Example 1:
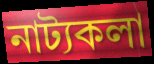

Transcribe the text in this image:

নাট্যকলা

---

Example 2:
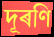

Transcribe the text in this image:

দূৰণি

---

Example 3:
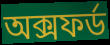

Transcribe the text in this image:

অক্সফৰ্ড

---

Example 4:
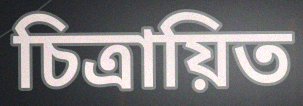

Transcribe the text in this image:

চিত্ৰায়িত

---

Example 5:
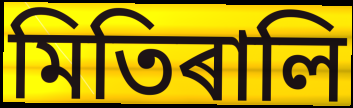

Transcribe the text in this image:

মিতিৰালি